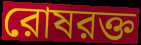
রোষরক্ত